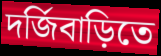
দর্জিবাড়িতে